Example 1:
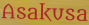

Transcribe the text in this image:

Asakusa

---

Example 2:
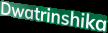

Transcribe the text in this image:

Dwatrinshika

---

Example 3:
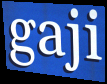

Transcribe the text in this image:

gaji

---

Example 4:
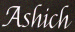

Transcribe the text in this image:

Ashich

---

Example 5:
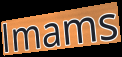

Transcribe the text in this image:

Imams